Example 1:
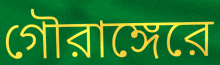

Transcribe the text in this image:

গৌরাঙ্গেরে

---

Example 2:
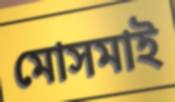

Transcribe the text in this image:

মোসমাই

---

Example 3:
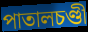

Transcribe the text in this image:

পাতালচণ্ডী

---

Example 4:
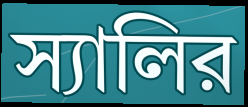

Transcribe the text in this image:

স্যালির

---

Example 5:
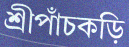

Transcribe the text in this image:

শ্রীপাঁচকড়ি